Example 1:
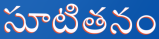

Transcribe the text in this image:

సూటితనం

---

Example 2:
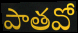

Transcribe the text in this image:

పాతవో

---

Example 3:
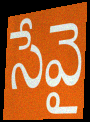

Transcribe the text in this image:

సేవై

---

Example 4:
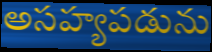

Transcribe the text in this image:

అసహ్యపడును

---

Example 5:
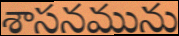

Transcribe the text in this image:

శాసనమును